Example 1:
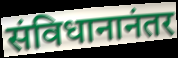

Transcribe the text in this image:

संविधानानंतर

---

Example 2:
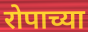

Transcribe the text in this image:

रोपाच्या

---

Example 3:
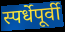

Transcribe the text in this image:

स्पर्धेपूर्वी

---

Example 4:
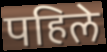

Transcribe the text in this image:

पहिले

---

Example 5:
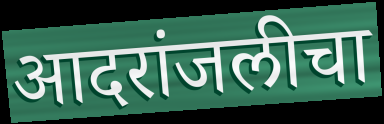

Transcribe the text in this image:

आदरांजलीचा